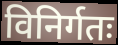
विनिर्गतः